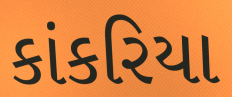
કાંકરિયા